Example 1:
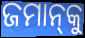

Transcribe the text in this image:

ଜମାନ୍‍କୁ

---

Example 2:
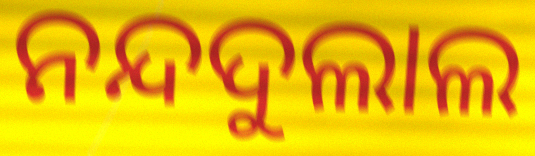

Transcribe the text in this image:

ନନ୍ଦଦୁଲାଲ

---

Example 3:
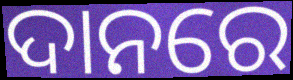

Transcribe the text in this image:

ଦାନରେ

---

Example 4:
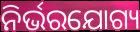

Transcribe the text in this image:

ନିର୍ଭରଯୋଗ୍ୟ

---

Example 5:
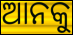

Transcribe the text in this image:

ଆନକୁ